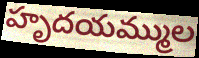
హృదయమ్ముల